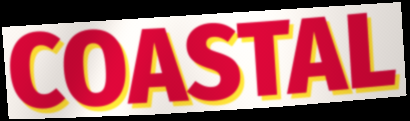
COASTAL